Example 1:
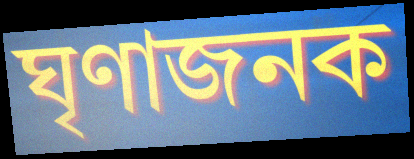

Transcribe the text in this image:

ঘৃণাজনক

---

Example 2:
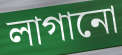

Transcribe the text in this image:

লাগানো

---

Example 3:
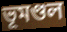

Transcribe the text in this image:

ভূমণ্ডল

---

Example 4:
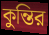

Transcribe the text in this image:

কুন্তির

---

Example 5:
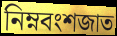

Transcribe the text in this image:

নিম্নবংশজাত